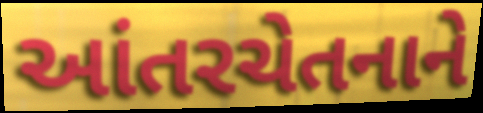
આંતરચેતનાને